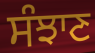
ਸੰਝਾਣ